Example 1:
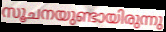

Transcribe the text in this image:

സൂചനയുണ്ടായിരുന്നു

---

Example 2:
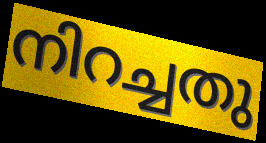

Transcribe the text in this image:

നിറച്ചതു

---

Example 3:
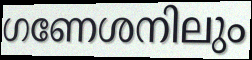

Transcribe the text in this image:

ഗണേശനിലും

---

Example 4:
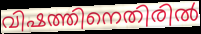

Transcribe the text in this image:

വിഷത്തിനെതിരിൽ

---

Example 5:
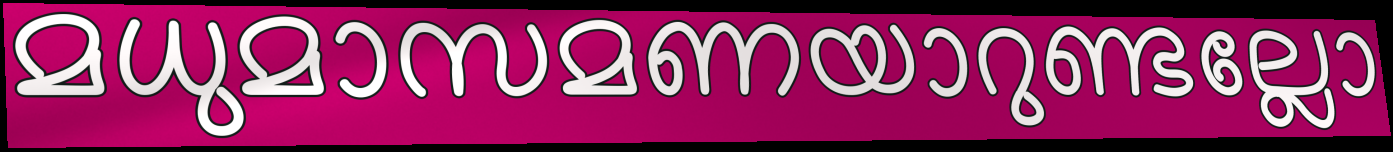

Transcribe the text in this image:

മധുമാസമണയാറുണ്ടല്ലോ